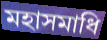
মহাসমাধি